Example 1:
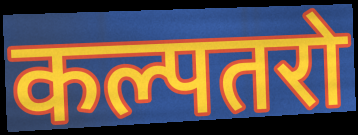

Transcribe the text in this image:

कल्पतरो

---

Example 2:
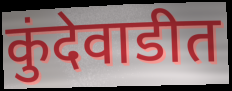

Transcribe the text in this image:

कुंदेवाडीत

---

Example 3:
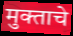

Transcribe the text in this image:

मुक्ताचे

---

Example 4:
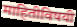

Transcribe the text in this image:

माहितीविषयी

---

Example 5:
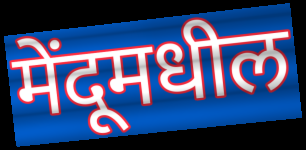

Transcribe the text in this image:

मेंदूमधील